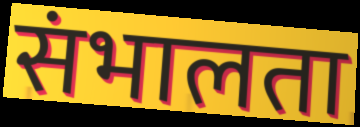
संभालता